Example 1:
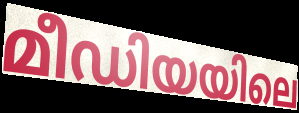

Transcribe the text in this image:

മീഡിയയിലെ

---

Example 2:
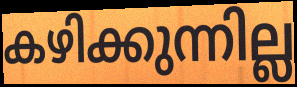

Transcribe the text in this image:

കഴിക്കുന്നില്ല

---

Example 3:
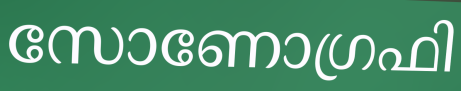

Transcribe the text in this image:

സോണോഗ്രഫി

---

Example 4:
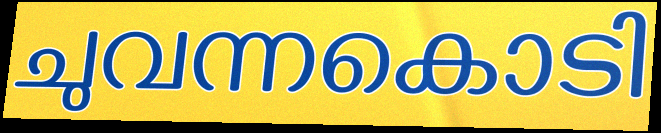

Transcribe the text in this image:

ചുവന്നകൊടി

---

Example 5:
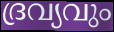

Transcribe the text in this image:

ദ്രവ്യവും